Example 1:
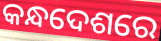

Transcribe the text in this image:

କନ୍ଧଦେଶରେ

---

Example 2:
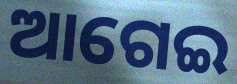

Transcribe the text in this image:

ଆଗେଇ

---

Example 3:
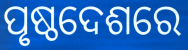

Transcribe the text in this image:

ପୃଷ୍ଠଦେଶରେ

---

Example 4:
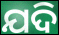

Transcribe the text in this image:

ଯଦି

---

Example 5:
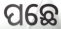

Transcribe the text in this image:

ପଛେ